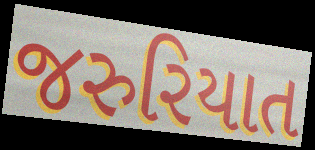
જરુરિયાત